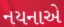
નયનાએ